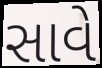
સાવે